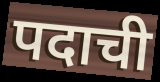
पदाची